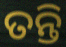
ତନ୍ତି